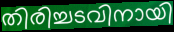
തിരിച്ചടവിനായി